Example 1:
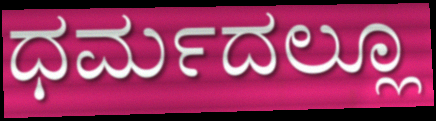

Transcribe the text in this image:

ಧರ್ಮದಲ್ಲೂ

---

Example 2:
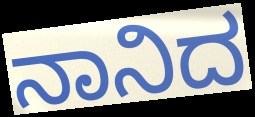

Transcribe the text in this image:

ನಾನಿದ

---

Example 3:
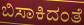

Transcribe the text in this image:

ಬಿಸಾಕಿದಂತೆ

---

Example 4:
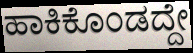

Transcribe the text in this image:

ಹಾಕಿಕೊಂಡದ್ದೇ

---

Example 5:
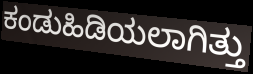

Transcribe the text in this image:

ಕಂಡುಹಿಡಿಯಲಾಗಿತ್ತು